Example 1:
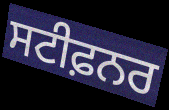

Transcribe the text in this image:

ਸਟੀਫ਼ਨਰ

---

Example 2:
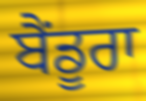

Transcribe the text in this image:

ਬੈਂਡੂਰਾ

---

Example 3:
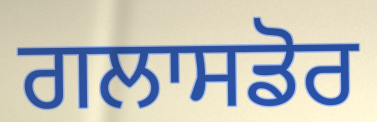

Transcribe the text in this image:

ਗਲਾਸਡੋਰ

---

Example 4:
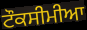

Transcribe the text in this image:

ਟੌਕਸੀਮੀਆ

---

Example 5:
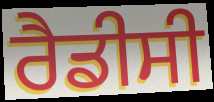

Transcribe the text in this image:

ਰੈਡੀਸੀ